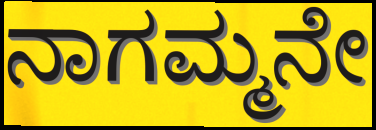
ನಾಗಮ್ಮನೇ